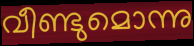
വീണ്ടുമൊന്നു